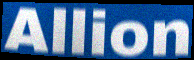
Allion